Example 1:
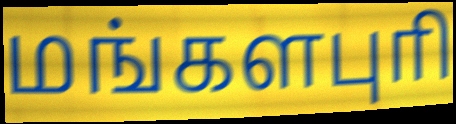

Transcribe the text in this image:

மங்களபுரி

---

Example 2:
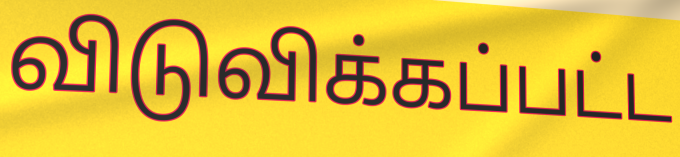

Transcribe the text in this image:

விடுவிக்கப்பட்ட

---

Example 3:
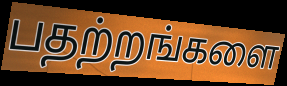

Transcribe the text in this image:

பதற்றங்களை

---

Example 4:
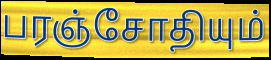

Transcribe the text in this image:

பரஞ்சோதியும்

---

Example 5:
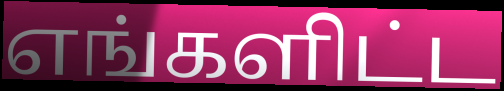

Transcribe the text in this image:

எங்களிட்ட